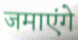
जमाएंगे